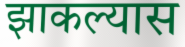
झाकल्यास